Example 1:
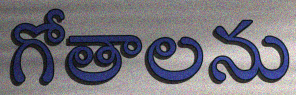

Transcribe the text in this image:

గోతాలను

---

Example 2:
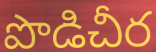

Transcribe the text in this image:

పొడిచీర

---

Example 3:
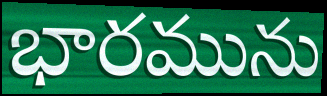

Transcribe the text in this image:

భారమును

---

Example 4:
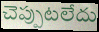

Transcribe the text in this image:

చెప్పుటలేదు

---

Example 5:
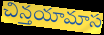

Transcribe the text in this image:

చిన్తయామాస